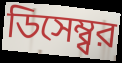
ডিসেম্ব্বর